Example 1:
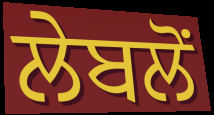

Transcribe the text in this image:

ਲੇਬਲੋਂ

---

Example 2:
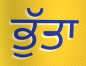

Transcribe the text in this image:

ਭੁੱਤਾ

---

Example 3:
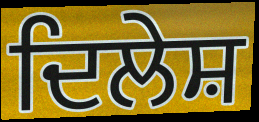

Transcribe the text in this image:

ਦਿਲੇਸ਼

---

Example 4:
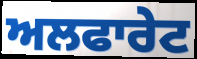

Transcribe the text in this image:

ਅਲਫਾਰੇਟ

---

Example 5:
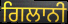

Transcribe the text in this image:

ਗਿਲਾਨੀ